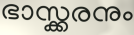
ഭാസ്ക്കരനും